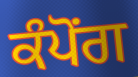
ਕੰਪੋਂਗ